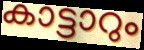
കാട്ടാറും